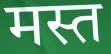
मस्‍त